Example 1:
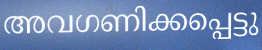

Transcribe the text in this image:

അവഗണിക്കപ്പെട്ടു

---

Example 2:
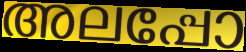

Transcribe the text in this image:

അലപ്പോ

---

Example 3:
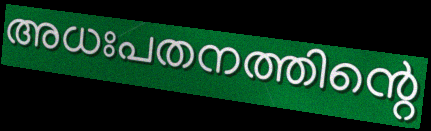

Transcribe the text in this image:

അധഃപതനത്തിന്റെ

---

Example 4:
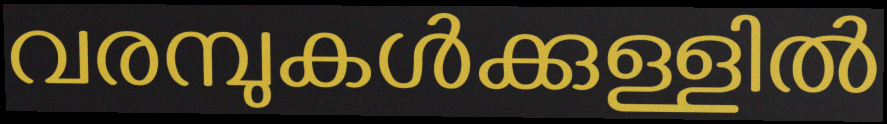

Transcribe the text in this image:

വരമ്പുകൾക്കുള്ളിൽ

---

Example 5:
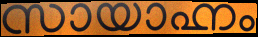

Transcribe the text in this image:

സായാഹ്നം